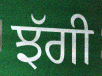
ਝੱਗੀ